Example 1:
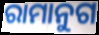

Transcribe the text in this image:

ରାମାନୁଗ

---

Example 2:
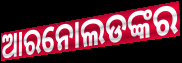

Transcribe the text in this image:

ଆରନୋଲଡଙ୍କର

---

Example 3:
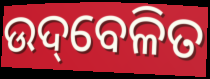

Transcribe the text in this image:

ଉଦ୍‌ବେଳିତ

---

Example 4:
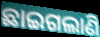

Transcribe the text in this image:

ଛାଇଗଲାଣି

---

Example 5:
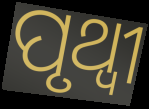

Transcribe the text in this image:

ପୃଥ୍ଵୀ